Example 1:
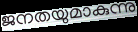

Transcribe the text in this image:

ജനതയുമാകുന്നു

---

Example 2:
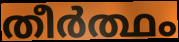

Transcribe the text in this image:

തീർത്ഥം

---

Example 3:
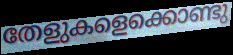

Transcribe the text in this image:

തേളുകളെക്കൊണ്ടു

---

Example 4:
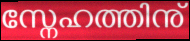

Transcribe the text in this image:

സ്നേഹത്തിനു്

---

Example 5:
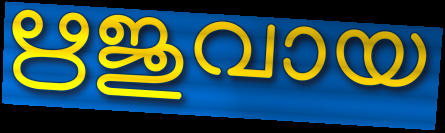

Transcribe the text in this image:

ഋജുവായ